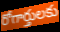
రోగార్తులకు